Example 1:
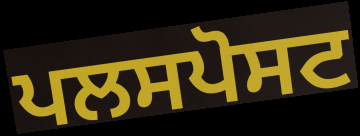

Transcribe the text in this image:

ਪਲਸਪੋਸਟ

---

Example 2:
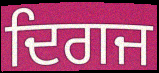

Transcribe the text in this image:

ਦਿਗਜ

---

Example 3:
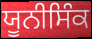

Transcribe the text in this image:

ਯੂਨੀਸਿੰਕ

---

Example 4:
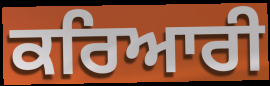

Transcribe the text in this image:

ਕਰਿਆਰੀ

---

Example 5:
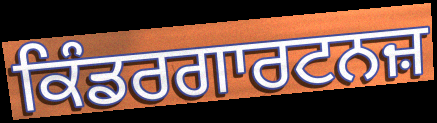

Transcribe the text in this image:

ਕਿੰਡਰਗਾਰਟਨਜ਼